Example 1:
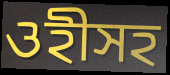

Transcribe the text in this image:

ওহীসহ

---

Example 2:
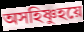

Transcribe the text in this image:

অসহিষ্ণুহয়ে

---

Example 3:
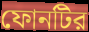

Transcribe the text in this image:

ফোনটির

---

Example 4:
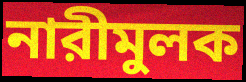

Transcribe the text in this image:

নারীমুলক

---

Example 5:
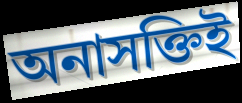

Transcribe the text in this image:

অনাসক্তিই